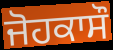
ਜੋਹਕਾਸੌ